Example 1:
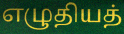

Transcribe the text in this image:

எழுதியத்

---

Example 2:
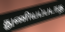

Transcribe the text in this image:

துணியப்படாத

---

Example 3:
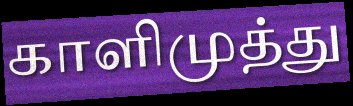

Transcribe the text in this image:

காளிமுத்து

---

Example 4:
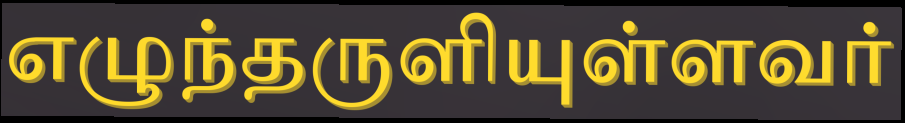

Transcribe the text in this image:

எழுந்தருளியுள்ளவர்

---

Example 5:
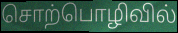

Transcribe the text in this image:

சொற்பொழிவில்